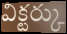
విక్టర్కు